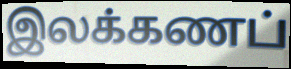
இலக்கணப்